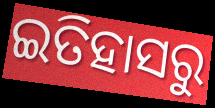
ଇତିହାସରୁ